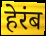
हेरंब